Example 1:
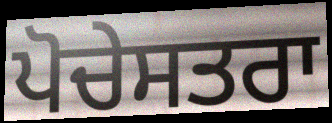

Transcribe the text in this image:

ਪੋਚੇਸਤਰਾ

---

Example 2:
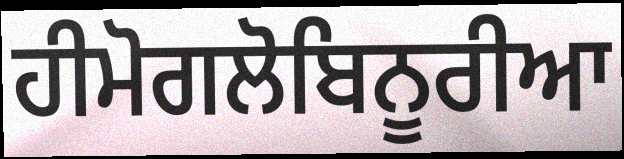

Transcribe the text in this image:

ਹੀਮੋਗਲੋਬਿਨੂਰੀਆ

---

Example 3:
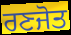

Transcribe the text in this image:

ਰਣਜੋਤ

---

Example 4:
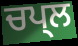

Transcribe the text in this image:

ਚਪ੍ਲ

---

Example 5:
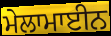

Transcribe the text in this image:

ਮੇਲਾਮਾਈਨ